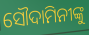
ସୌଦାମିନୀଙ୍କୁ